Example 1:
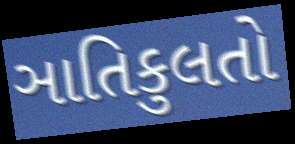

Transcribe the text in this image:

ઞાતિકુલતો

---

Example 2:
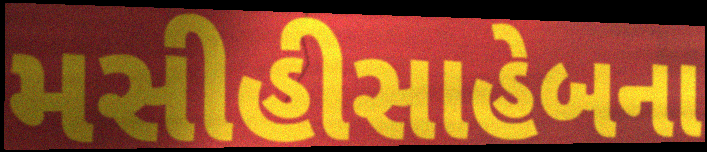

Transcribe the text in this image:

મસીહીસાહેબના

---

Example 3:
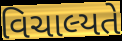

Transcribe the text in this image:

વિચાલ્યતે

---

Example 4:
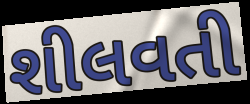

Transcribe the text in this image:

શીલવતી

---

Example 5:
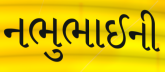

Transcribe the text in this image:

નભુભાઈની